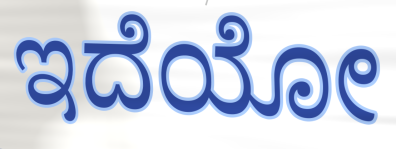
ಇದೆಯೋ